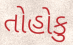
તોહોકુ